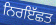
ਨਿਰਇੱਛਤ